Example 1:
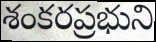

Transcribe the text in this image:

శంకరప్రభుని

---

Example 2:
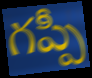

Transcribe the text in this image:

గప్పీ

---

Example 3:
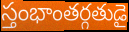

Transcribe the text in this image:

స్తంభాంతర్గతుడై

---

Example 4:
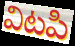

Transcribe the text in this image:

విటపి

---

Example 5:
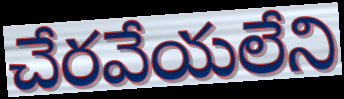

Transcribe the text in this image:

చేరవేయలేని